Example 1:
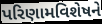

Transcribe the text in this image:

પરિણામવિશેષને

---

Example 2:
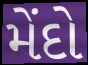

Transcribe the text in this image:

મેંદો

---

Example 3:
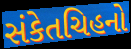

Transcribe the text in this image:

સંકેતચિહનો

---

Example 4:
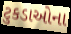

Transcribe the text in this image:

ટુકડાઓના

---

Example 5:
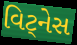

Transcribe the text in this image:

વિટ્નેસ